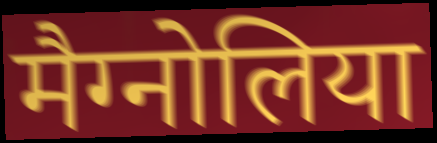
मैग्नोलिया